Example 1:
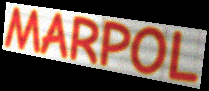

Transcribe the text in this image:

MARPOL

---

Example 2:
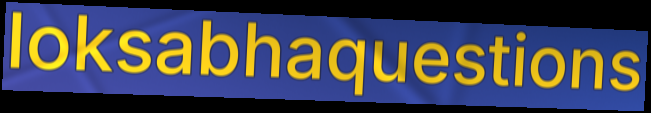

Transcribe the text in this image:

loksabhaquestions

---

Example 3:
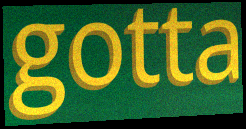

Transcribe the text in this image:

gotta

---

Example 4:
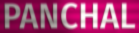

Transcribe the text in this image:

PANCHAL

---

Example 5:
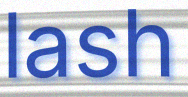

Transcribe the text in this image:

lash